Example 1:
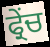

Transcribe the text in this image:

ਫ੍ਰੇਂਚ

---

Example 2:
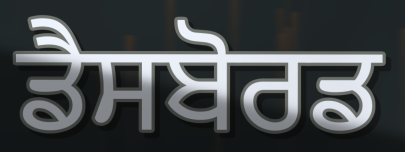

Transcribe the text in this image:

ਡੈਸਬੋਰਡ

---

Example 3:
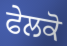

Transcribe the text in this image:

ਫੇਲਕੋ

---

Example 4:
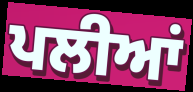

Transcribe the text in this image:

ਪਲੀਆਂ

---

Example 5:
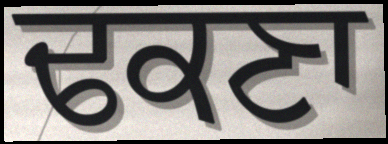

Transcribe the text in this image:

ਢਕਣਾ